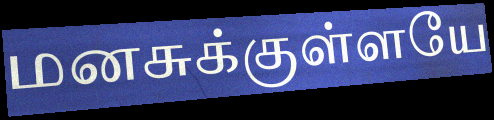
மனசுக்குள்ளயே